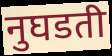
नुघडती